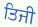
ਤਿਜੀ